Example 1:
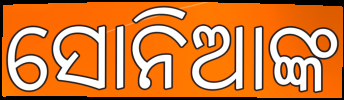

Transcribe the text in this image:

ସୋନିଆଙ୍କ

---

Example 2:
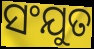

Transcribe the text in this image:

ସଂଯୁତ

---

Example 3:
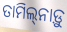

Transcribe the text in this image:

ତାମିଲ୍‌ନାଡ଼ୁ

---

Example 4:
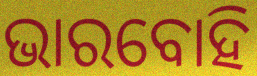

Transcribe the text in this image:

ଭାରବୋହି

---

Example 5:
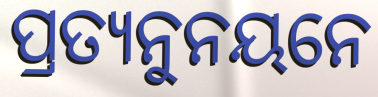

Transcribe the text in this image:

ପ୍ରତ୍ୟନୁନୟନେ